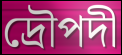
দ্রৌপদী